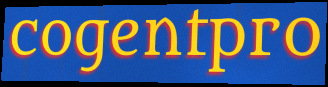
cogentpro